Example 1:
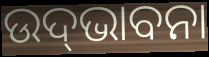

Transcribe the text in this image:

ଉଦ୍‍ଭାବନା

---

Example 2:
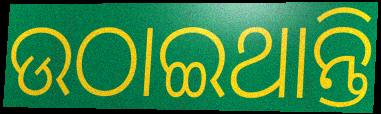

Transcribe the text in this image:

ଉଠାଇଥାନ୍ତି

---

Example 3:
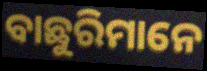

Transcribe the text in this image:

ବାଛୁରିମାନେ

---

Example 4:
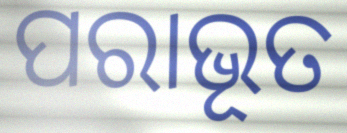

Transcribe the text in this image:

ପରାଭୂତ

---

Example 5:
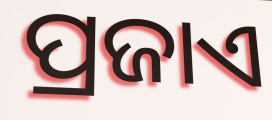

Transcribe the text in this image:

ପ୍ରଜାଏ